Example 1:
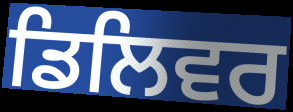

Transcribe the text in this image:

ਡਿਲਿਵਰ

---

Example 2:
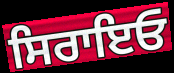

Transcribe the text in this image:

ਸਿਰਾਇਓ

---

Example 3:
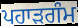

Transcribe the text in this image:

ਪਹਾੜਗੰਮ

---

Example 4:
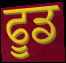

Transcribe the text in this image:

ਫੂਡ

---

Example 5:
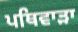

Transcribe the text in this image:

ਪਥਿਵਾੜਾ